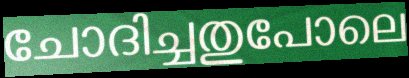
ചോദിച്ചതുപോലെ